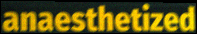
anaesthetized